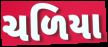
ચળિયા